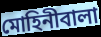
মোহিনীবালা